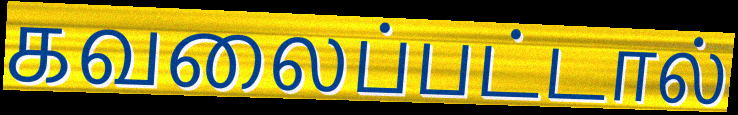
கவலைப்பட்டால்